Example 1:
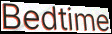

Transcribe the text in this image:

Bedtime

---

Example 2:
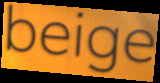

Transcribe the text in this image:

beige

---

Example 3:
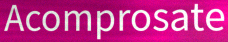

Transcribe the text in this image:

Acomprosate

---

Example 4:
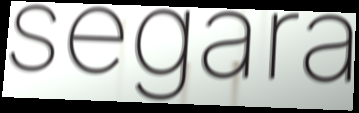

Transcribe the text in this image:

segara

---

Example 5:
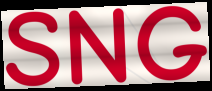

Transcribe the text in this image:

SNG